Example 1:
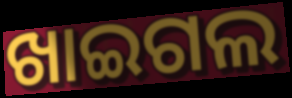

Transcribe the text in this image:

ଖାଇଗଲ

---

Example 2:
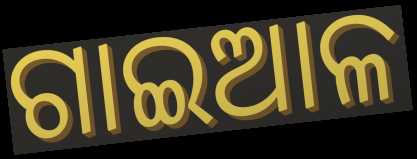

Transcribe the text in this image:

ଗାଇଆଳ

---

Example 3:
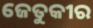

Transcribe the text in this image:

ଜେତୁକୀର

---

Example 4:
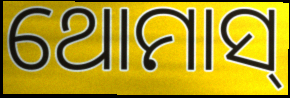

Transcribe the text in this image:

ଥୋମାସ୍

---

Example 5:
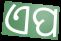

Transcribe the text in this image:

ଏପ